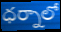
ధర్నాలో